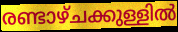
രണ്ടാഴ്ചക്കുള്ളിൽ